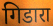
गिडारा